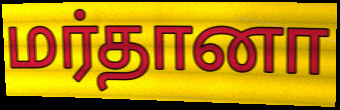
மர்தானா